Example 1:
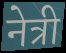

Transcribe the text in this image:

नेत्री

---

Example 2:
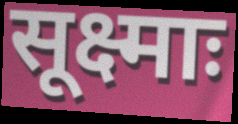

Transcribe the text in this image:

सूक्ष्माः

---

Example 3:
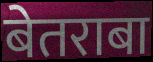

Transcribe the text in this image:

बेतराबा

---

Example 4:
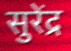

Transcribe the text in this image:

सुरेंद्र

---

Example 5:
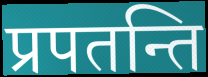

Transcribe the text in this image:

प्रपतन्ति